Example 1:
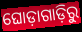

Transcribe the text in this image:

ଘୋଡ଼ାଗାଡ଼ିରୁ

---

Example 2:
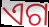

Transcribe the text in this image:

ଏଗ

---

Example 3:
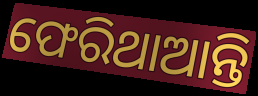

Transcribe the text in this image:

ଫେରିଥାଆନ୍ତି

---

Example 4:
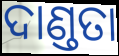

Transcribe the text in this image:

ଦାଣ୍ଡତା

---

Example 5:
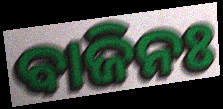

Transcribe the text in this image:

ବାଜିନଃ